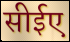
सीईए